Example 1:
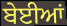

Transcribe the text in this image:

ਬੇਈਆਂ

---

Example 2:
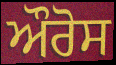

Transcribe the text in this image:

ਔਰੋਸ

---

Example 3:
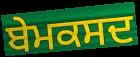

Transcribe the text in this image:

ਬੇਮਕਸਦ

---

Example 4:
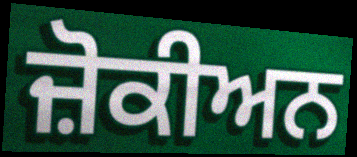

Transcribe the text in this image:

ਜ਼ੋਕੀਅਨ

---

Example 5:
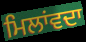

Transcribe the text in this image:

ਮਿਲਾਂਵਦਾ